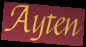
Ayten